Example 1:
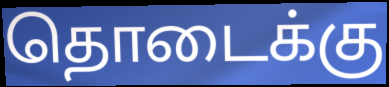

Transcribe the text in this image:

தொடைக்கு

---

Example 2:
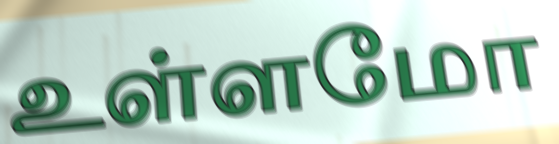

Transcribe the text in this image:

உள்ளமோ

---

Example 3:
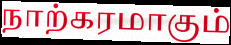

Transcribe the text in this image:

நாற்கரமாகும்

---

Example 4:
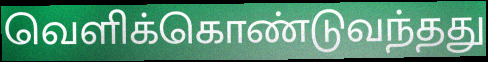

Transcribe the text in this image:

வெளிக்கொண்டுவந்தது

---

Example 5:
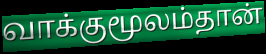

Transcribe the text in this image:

வாக்குமூலம்தான்